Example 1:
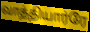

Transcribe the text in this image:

வாத்தியார்ரே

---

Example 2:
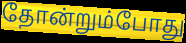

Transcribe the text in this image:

தோன்றும்போது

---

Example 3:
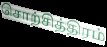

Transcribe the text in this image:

சொற்சித்திரம்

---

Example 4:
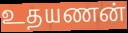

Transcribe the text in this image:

உதயணன்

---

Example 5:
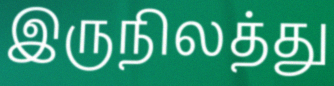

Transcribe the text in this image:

இருநிலத்து